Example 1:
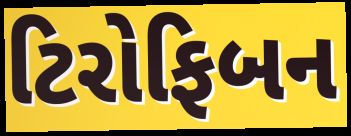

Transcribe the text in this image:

ટિરોફિબન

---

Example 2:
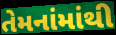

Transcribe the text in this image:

તેમનાંમાંથી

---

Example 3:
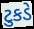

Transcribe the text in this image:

ટુકડે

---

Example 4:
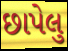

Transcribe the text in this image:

છાપેલુ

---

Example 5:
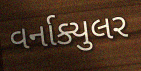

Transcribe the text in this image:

વર્નાક્યુલર